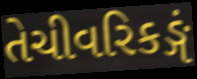
તેચીવરિકઙ્ગં